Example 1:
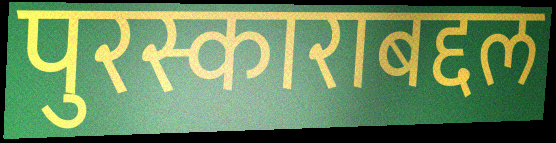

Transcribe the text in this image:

पुरस्काराबद्दल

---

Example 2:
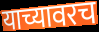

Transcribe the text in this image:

याच्यावरच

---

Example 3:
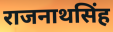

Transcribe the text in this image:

राजनाथसिंह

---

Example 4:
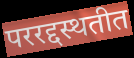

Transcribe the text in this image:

पररद्दस्थतीत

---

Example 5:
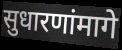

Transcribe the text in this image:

सुधारणांमागे